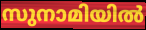
സുനാമിയിൽ